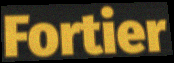
Fortier